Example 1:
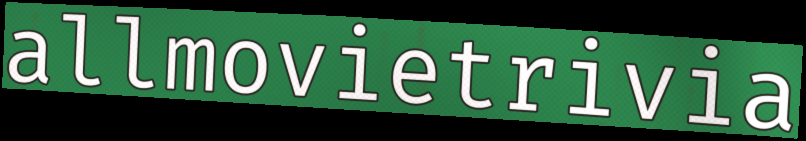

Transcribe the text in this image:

allmovietrivia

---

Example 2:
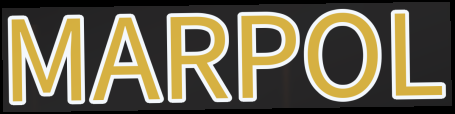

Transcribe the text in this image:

MARPOL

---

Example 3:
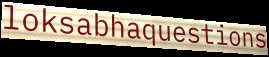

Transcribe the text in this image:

loksabhaquestions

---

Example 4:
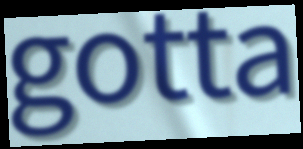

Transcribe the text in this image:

gotta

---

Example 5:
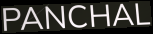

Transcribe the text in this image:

PANCHAL